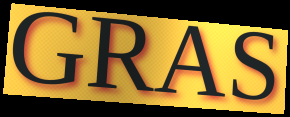
GRAS